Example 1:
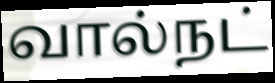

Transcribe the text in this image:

வால்நட்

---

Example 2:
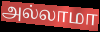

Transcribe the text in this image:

அல்லாமா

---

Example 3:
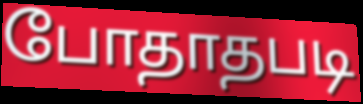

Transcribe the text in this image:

போதாதபடி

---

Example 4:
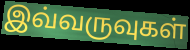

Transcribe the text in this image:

இவ்வருவுகள்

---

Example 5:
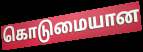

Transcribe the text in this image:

கொடுமையான